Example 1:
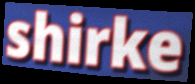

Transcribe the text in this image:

shirke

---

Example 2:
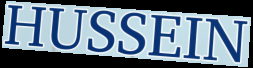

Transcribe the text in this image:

HUSSEIN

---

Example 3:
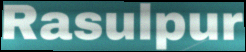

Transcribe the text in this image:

Rasulpur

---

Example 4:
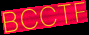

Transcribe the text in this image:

BCCTF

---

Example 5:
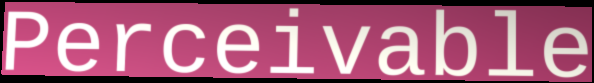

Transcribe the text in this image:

Perceivable